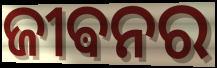
ଜୀଵନର